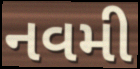
નવમી